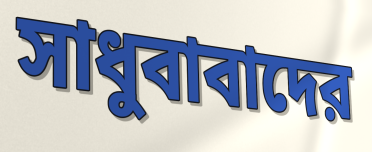
সাধুবাবাদের